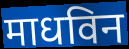
माधविन